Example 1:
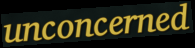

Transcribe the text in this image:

unconcerned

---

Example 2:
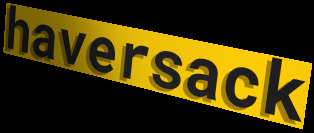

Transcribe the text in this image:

haversack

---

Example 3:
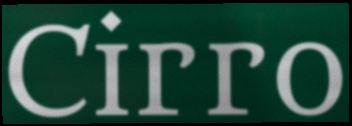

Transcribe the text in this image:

Cirro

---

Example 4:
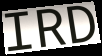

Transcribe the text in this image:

IRD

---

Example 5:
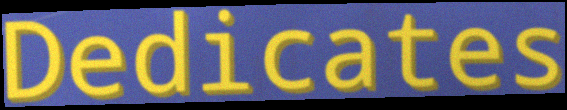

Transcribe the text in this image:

Dedicates